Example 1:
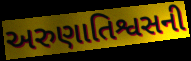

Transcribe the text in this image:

અરુણાતિશ્વસની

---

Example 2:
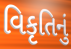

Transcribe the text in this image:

વિકૃતિનું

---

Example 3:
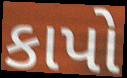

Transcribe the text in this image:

કાપો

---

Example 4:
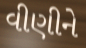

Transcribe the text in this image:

વીણીને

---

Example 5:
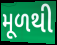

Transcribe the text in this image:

મૂળથી